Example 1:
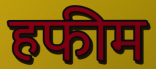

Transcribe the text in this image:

हफीम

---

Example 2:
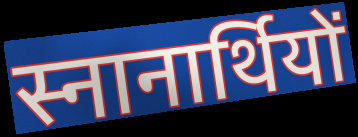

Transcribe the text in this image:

स्नानार्थियों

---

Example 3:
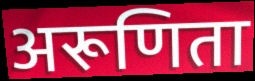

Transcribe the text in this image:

अरूणिता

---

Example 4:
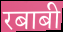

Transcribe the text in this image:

रबाबी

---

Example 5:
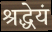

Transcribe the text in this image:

श्रद्धेयं